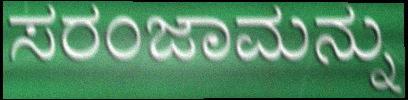
ಸರಂಜಾಮನ್ನು